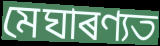
মেঘাৰণ্যত